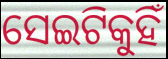
ସେଇଟିକୁହିଁ